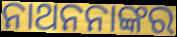
ନାଥନନାଙ୍କର